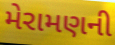
મેરામણની